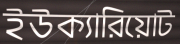
ইউক্যারিয়োট